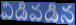
విడివడిన